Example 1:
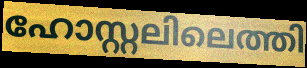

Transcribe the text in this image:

ഹോസ്റ്റലിലെത്തി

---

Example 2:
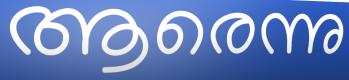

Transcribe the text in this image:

ആരെന്നു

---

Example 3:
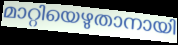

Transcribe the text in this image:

മാറ്റിയെഴുതാനായി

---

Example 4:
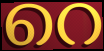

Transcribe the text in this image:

റെ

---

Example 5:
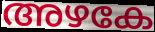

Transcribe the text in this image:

അഴകേ